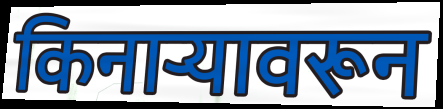
किनाऱ्यावरून